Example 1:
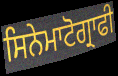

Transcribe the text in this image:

ਸਿਨੇਮਾਟੋਗ੍ਰਾਫੀ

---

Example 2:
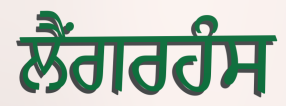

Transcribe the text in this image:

ਲੈਂਗਰਹੰਸ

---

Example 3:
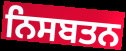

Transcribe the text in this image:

ਨਿਸਬਤਨ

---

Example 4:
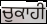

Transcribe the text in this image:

ਚੁਕਾਹੀ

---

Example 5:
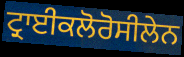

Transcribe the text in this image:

ਟ੍ਰਾਈਕਲੋਰੋਸੀਲੇਨ